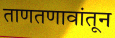
ताणतणावांतून